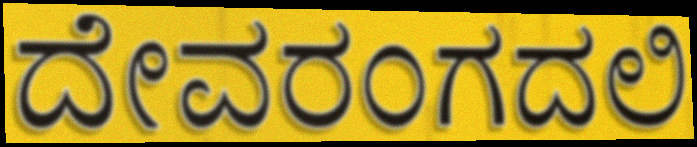
ದೇವರಂಗದಲಿ